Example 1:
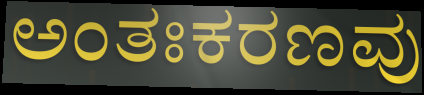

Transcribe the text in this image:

ಅಂತಃಕರಣವು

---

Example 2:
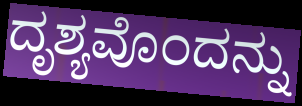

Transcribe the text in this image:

ದೃಶ್ಯವೊಂದನ್ನು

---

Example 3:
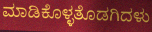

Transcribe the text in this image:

ಮಾಡಿಕೊಳ್ಳತೊಡಗಿದಳು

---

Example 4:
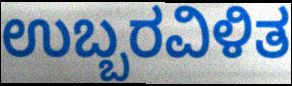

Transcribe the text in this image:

ಉಬ್ಬರವಿಳಿತ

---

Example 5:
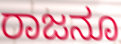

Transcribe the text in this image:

ರಾಜನೂ